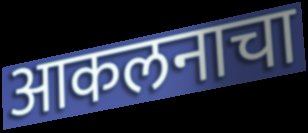
आकलनाचा